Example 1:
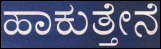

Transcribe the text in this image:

ಹಾಕುತ್ತೇನೆ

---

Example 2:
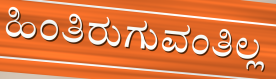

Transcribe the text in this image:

ಹಿಂತಿರುಗುವಂತಿಲ್ಲ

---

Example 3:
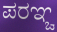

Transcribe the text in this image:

ಪರಞ್ಚ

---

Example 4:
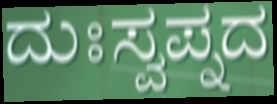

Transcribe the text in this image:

ದುಃಸ್ವಪ್ನದ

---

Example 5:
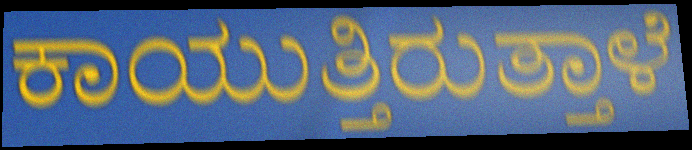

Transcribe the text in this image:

ಕಾಯುತ್ತಿರುತ್ತಾಳೆ